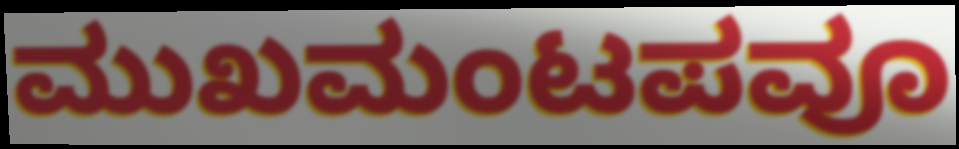
ಮುಖಮಂಟಪವೂ